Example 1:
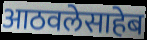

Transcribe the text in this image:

आठवलेसाहेब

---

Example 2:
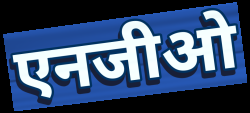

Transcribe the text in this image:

एनजीओ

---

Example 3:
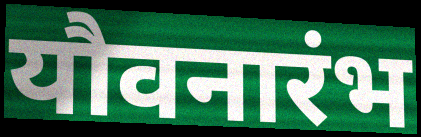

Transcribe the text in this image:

यौवनारंभ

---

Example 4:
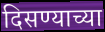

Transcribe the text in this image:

दिसण्याच्या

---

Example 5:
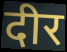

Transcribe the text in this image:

दीर